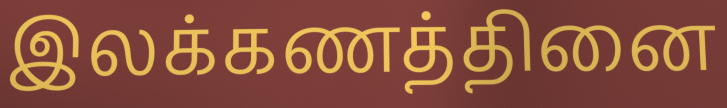
இலக்கணத்தினை